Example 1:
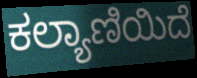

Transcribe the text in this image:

ಕಲ್ಯಾಣಿಯಿದೆ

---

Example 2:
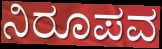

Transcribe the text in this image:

ನಿರೂಪವ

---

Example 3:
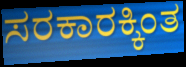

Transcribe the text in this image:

ಸರಕಾರಕ್ಕಿಂತ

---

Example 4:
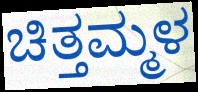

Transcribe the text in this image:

ಚಿತ್ತಮ್ಮಳ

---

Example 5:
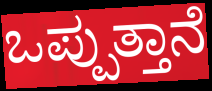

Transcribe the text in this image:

ಒಪ್ಪುತ್ತಾನೆ